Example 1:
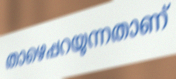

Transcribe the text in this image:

താഴെപ്പറയുന്നതാണ്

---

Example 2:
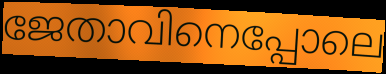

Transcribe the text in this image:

ജേതാവിനെപ്പോലെ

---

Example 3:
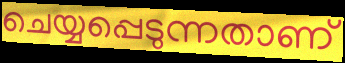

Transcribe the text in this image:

ചെയ്യപ്പെടുന്നതാണ്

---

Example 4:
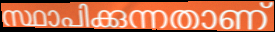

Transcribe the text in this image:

സ്ഥാപിക്കുന്നതാണ്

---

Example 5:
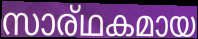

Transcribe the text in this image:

സാര്ഥകമായ